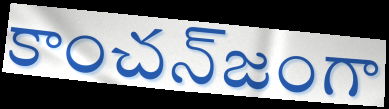
కాంచన్‌జంగా